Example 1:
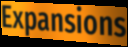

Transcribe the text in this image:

Expansions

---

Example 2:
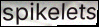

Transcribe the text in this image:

spikelets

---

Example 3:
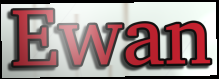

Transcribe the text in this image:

Ewan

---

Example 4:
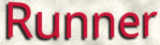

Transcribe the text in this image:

Runner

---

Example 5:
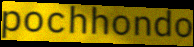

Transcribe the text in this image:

pochhondo